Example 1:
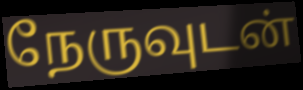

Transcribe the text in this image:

நேருவுடன்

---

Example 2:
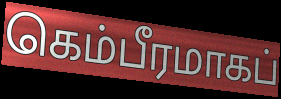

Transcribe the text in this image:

கெம்பீரமாகப்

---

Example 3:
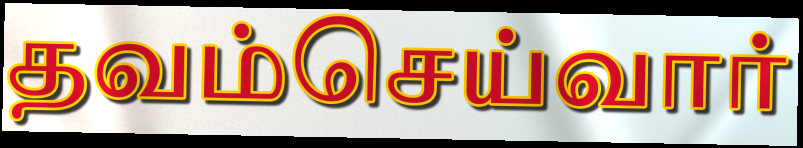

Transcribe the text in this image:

தவம்செய்வார்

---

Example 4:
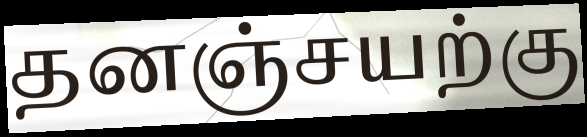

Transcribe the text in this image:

தனஞ்சயற்கு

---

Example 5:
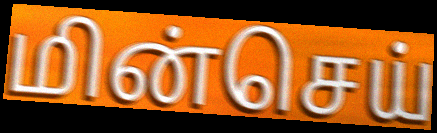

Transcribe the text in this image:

மின்செய்